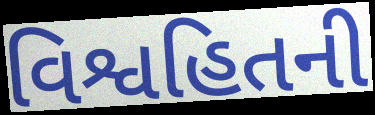
વિશ્વહિતની